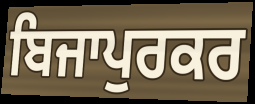
ਬਿਜਾਪੁਰਕਰ